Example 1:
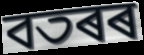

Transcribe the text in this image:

বতৰৰ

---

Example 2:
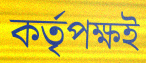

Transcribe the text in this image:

কৰ্তৃপক্ষই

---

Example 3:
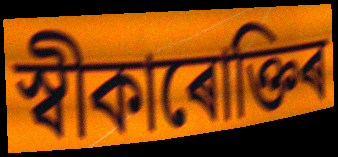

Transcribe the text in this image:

স্বীকাৰোক্তিৰ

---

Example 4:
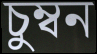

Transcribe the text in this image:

চুম্বন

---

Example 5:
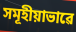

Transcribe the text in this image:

সমূহীয়াভাৱে